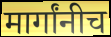
मार्गांनीच